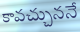
కావచ్చుననే